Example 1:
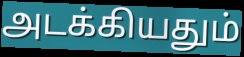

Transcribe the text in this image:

அடக்கியதும்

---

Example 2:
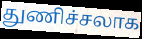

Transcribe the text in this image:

துணிச்சலாக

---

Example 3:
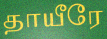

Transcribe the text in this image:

தாயீரே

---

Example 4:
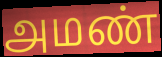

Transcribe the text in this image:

அமண்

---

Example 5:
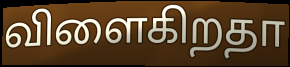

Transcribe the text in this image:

விளைகிறதா